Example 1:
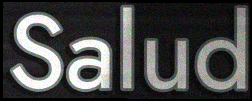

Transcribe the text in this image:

Salud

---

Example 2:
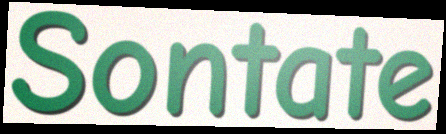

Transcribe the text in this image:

Sontate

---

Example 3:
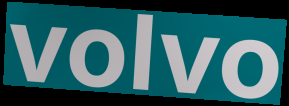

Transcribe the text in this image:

volvo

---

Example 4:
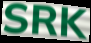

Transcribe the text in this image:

SRK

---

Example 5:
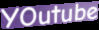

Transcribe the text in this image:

YOutube